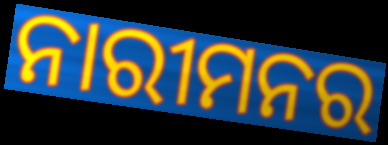
ନାରୀମନର